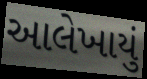
આલેખાયું